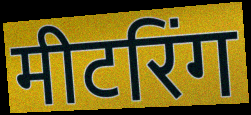
मीटरिंग